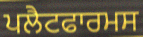
ਪਲੈਟਫਾਰਮਸ